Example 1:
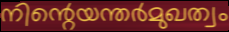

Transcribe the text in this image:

നിന്റെയന്തർമുഖത്വം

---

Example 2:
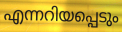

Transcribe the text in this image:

എന്നറിയപ്പെടും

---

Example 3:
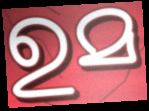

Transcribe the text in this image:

ഉമ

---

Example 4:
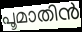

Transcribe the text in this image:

പൂമാതിൻ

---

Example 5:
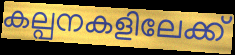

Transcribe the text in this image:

കല്പനകളിലേക്ക്